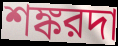
শঙ্করদা